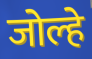
जोल्हे